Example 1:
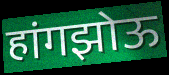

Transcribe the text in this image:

हांगझोऊ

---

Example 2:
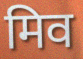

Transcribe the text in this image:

मिव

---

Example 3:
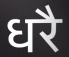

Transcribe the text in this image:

धरै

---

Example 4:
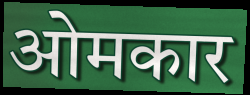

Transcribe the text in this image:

ओमकार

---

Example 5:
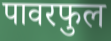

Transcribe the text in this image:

पावरफुल